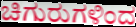
ಚಿಗುರುಗಳಿಂದ